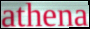
athena